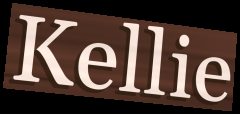
Kellie